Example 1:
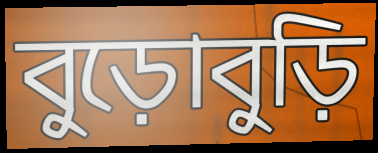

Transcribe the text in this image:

বুড়োবুড়ি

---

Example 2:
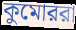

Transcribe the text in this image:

কুমোররা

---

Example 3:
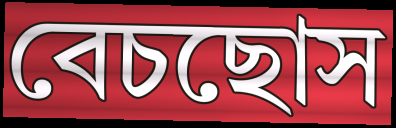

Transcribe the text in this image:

বেচছোস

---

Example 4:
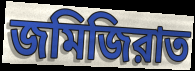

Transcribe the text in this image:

জমিজিরাত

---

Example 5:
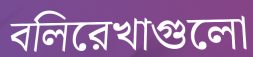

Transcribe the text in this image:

বলিরেখাগুলো